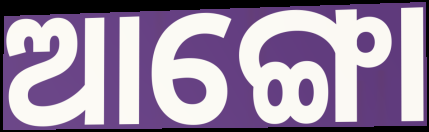
ଆଙ୍ଗୋ